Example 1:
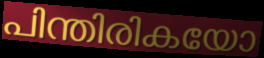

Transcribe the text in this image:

പിന്തിരികയോ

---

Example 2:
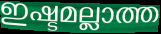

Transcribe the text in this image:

ഇഷ്ടമല്ലാത്ത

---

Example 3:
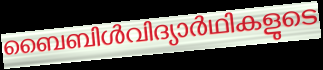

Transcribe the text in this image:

ബൈബിൾവിദ്യാർഥികളുടെ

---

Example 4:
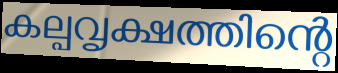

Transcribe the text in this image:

കല്പവൃക്ഷത്തിന്റെ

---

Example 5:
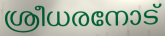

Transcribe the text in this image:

ശ്രീധരനോട്